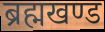
ब्रह्मखण्ड